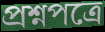
প্রশ্নপত্রে